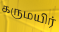
கருமயிர்